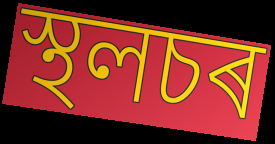
স্থলচৰ